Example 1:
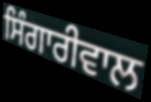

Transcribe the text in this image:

ਸਿੰਗਾਰੀਵਾਲ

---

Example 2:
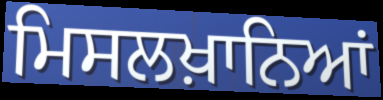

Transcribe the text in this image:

ਮਿਸਲਖ਼ਾਨਿਆਂ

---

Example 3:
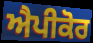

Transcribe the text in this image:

ਐਪੀਕੋਰ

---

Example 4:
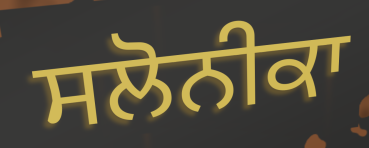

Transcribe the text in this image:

ਸਲੋਨੀਕਾ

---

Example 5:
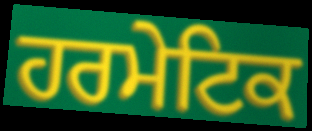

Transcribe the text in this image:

ਹਰਮੇਟਿਕ